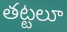
తట్టలూ